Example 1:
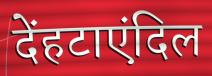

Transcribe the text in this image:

देंहटाएंदिल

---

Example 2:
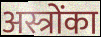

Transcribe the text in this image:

अस्त्रोंका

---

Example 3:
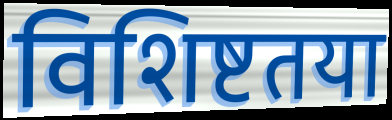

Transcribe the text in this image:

विशिष्टतया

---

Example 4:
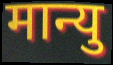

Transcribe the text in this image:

मान्यु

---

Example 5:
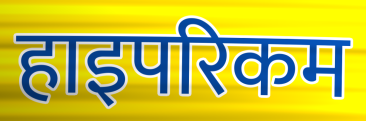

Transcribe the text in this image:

हाइपरिकम